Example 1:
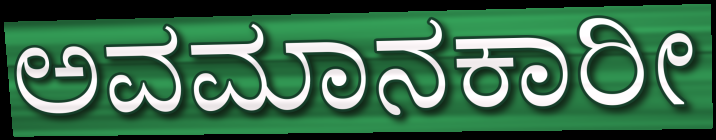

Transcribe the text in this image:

ಅವಮಾನಕಾರೀ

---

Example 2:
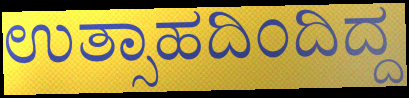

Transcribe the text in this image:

ಉತ್ಸಾಹದಿಂದಿದ್ದ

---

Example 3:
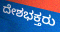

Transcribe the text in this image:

ದೇಶಭಕ್ತರು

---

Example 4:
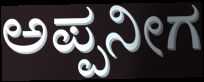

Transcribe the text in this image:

ಅಪ್ಪನೀಗ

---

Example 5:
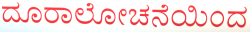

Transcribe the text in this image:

ದೂರಾಲೋಚನೆಯಿಂದ